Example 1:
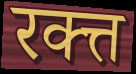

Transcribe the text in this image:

रक्त्त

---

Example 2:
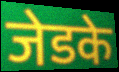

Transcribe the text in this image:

जेडके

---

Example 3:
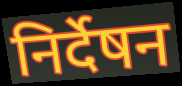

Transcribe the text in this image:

निर्देषन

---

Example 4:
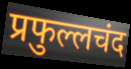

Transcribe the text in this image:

प्रफुल्लचंद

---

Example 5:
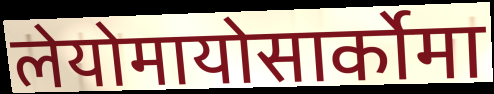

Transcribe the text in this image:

लेयोमायोसार्कोमा